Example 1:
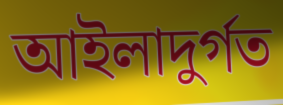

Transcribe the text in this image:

আইলাদুর্গত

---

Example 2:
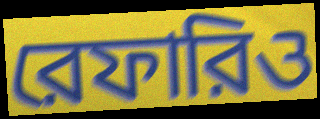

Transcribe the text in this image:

রেফারিও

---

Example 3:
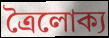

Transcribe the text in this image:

ত্রৈলোক্য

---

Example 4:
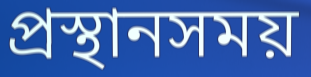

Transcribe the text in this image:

প্রস্থানসময়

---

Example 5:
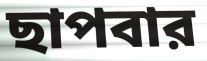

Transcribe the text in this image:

ছাপবার